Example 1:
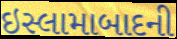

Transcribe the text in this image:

ઇસ્લામાબાદની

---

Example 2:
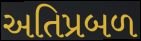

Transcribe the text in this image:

અતિપ્રબળ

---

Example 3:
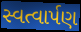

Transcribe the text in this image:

સ્વત્વાર્પણ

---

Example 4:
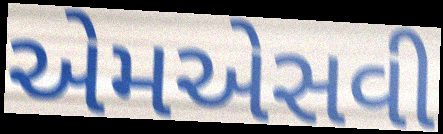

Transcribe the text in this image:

એમએસવી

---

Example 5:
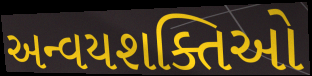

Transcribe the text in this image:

અન્વયશક્તિઓ